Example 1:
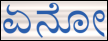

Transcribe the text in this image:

ಏನೋ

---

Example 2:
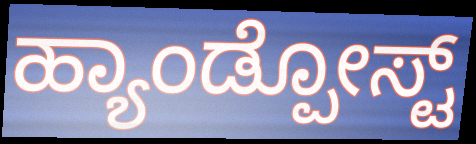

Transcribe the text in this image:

ಹ್ಯಾಂಡ್ಪೋಸ್ಟ್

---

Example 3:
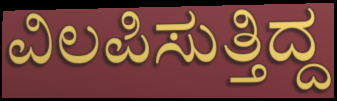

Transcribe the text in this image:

ವಿಲಪಿಸುತ್ತಿದ್ದ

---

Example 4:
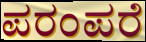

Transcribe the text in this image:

ಪರಂಪರೆ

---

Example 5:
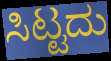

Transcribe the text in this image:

ಸಿಟ್ಟದು